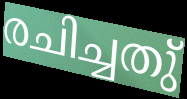
രചിച്ചതു്